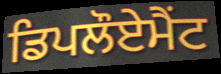
ਡਿਪਲੌਏਮੈਂਟ